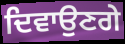
ਦਿਵਾਉਣਗੇ